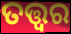
ତତ୍ତ୍ଵର